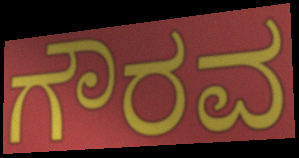
ಗೌರವ